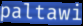
paltawi